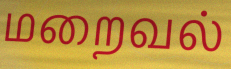
மறைவல்